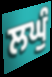
ਲਘੁੰ